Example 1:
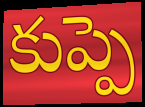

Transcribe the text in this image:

కుప్పె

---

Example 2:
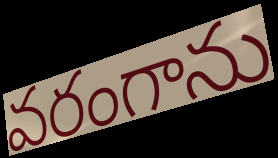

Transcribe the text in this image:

వరంగాను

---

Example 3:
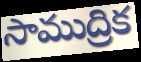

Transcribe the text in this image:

సాముద్రిక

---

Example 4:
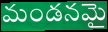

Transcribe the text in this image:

మండనమై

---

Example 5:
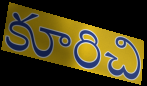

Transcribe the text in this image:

కూరిచి